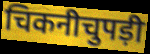
चिकनीचुपड़ी